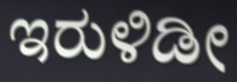
ಇರುಳಿಡೀ